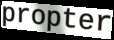
propter